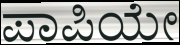
ಪಾಪಿಯೇ